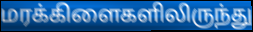
மரக்கிளைகளிலிருந்து